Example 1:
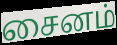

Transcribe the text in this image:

சைனம்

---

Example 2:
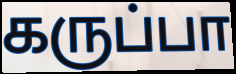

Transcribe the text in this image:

கருப்பா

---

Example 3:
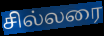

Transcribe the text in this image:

சில்லரை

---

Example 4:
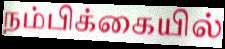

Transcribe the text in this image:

நம்பிக்கையில்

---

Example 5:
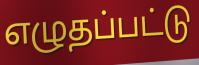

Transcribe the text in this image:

எழுதப்பட்டு